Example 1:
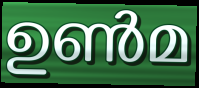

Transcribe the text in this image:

ഉൺമ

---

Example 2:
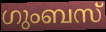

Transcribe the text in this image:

ഗുംബസ്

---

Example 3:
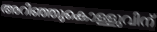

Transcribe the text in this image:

അറിഞ്ഞുകൊള്ളുവിന്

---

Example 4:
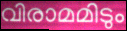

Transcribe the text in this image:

വിരാമമിടും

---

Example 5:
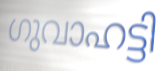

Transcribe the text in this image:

ഗുവാഹട്ടി